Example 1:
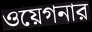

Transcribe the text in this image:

ওয়েগনার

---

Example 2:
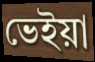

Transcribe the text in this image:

ভেইয়া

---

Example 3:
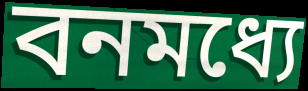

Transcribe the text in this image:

বনমধ্যে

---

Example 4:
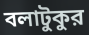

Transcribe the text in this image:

বলাটুকুর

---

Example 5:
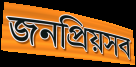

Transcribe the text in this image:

জনপ্রিয়সব